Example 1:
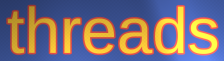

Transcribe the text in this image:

threads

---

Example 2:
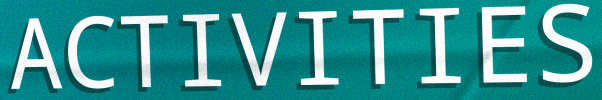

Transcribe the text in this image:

ACTIVITIES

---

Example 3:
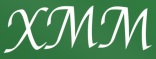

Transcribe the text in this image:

XMM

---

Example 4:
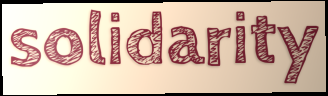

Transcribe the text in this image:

solidarity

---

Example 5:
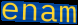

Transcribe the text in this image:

enam